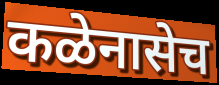
कळेनासेच